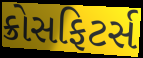
ક્રોસફિટર્સ